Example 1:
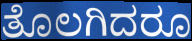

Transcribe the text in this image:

ತೊಲಗಿದರೂ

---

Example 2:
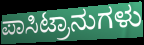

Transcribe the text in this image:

ಪಾಸಿಟ್ರಾನುಗಳು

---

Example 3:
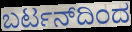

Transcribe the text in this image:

ಬರ್ಟನ್‌ದಿಂದ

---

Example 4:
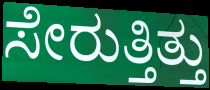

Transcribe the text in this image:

ಸೇರುತ್ತಿತ್ತು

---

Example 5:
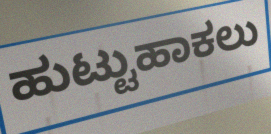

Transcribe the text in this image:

ಹುಟ್ಟುಹಾಕಲು